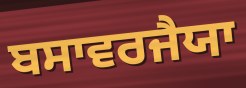
ਬਸਾਵਰਜੈਯਾ